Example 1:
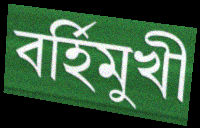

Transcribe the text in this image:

বৰ্হিমুখী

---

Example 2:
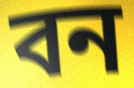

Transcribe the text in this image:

বন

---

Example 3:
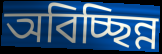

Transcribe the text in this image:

অবিচ্ছিন্ন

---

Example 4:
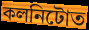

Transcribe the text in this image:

কলনিটোত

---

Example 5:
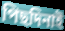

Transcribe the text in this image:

পিছদিনাই